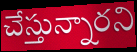
చేస్తున్నారని